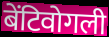
बेंटिवोगली